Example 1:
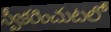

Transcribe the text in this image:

స్వీకరించుటలో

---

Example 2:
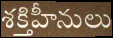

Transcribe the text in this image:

శక్తిహీనులు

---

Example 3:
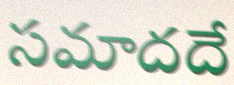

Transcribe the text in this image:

సమాదదే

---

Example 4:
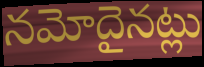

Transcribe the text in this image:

నమోదైనట్లు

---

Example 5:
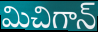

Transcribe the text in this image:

మిచిగాన్